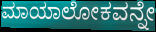
ಮಾಯಾಲೋಕವನ್ನೇ